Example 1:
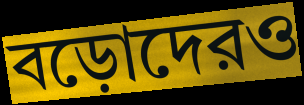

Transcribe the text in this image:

বড়োদেরও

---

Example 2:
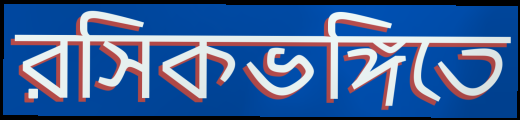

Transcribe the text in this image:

রসিকভঙ্গিতে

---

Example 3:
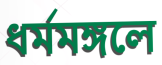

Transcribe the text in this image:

ধর্মমঙ্গলে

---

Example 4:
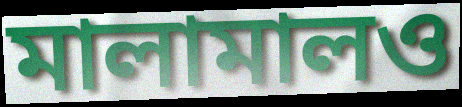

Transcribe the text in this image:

মালামালও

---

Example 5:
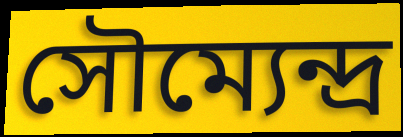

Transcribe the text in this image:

সৌম্যেন্দ্র